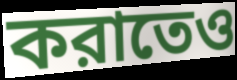
করাতেও